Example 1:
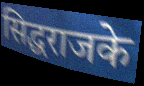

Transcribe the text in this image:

सिद्धराजके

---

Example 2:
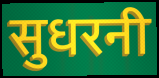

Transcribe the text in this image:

सुधरनी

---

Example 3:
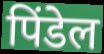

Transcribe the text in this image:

पिंडेल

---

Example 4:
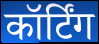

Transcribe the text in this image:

कॉर्टिंग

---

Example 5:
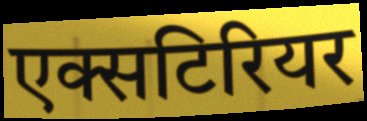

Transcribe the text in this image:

एक्सटिरियर